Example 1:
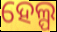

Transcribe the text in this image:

ହେଲ୍ପ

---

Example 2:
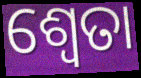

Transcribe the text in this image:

ଶ୍ୱେତା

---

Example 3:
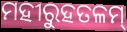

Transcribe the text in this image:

ମହୀରୁହତଳମ୍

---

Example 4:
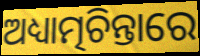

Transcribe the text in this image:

ଅଧ୍ୟାତ୍ମଚିନ୍ତାରେ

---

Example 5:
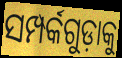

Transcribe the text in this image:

ସମ୍ପର୍କଗୁଡ଼ାକୁ